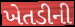
ખેતડીની